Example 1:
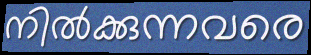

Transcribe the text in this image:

നിൽക്കുന്നവരെ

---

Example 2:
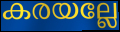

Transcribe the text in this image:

കരയല്ലേ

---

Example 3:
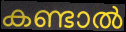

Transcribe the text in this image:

കണ്ടാൽ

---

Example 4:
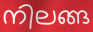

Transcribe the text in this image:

നിലങ്ങ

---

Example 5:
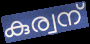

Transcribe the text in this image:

കുര്വന്